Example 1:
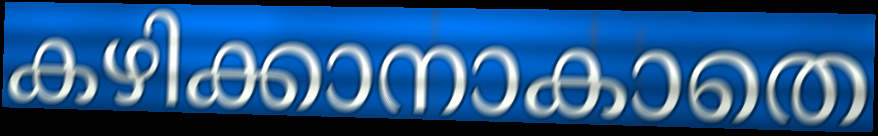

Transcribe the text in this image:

കഴിക്കാനാകാതെ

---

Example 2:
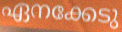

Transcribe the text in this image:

ഏനക്കേടു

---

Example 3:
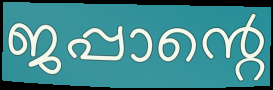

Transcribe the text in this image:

ജപ്പാന്റെ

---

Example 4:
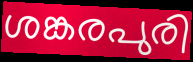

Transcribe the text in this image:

ശങ്കരപുരി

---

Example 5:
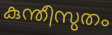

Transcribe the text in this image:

കുന്തീസുതം